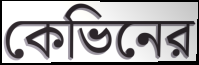
কেভিনের